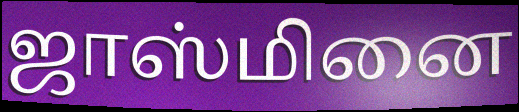
ஜாஸ்மினை